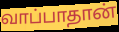
வாப்பாதான்